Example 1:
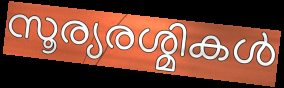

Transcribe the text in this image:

സൂര്യരശ്മികൾ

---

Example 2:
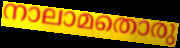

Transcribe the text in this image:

നാലാമതൊരു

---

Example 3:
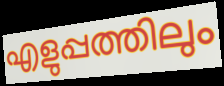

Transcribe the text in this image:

എളുപ്പത്തിലും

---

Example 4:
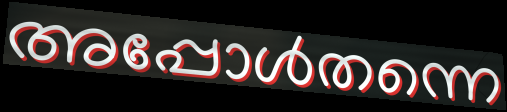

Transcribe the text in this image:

അപ്പോൾതന്നെ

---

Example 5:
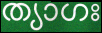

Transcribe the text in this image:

ത്യാഗഃ